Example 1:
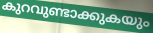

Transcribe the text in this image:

കുറവുണ്ടാക്കുകയും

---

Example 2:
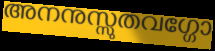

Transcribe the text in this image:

അനനുസ്സുതവഗ്ഗോ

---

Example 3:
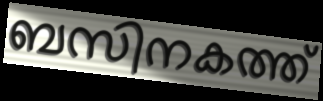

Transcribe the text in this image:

ബസിനകത്ത്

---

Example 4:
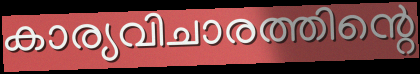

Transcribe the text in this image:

കാര്യവിചാരത്തിന്റെ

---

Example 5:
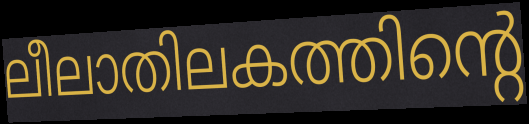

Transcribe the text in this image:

ലീലാതിലകത്തിന്റെ